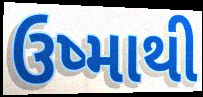
ઉષ્માથી